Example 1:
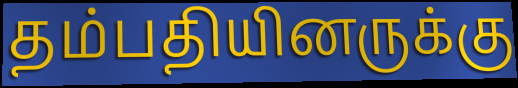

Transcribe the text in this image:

தம்பதியினருக்கு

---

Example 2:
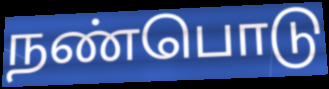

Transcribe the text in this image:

நண்பொடு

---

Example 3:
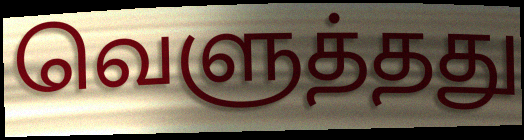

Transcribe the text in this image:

வெளுத்தது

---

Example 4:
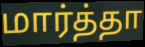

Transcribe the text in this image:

மார்த்தா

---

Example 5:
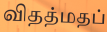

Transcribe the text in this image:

விதத்மதப்